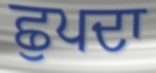
ਛੁਪਦਾ